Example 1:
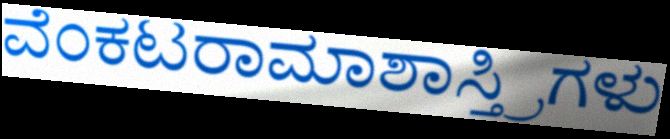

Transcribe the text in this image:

ವೆಂಕಟರಾಮಾಶಾಸ್ತ್ರಿಗಳು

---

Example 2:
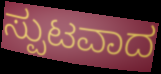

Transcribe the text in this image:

ಸ್ಪುಟವಾದ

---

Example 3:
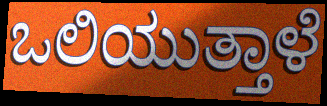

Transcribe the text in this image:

ಒಲಿಯುತ್ತಾಳೆ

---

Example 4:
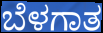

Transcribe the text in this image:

ಬೆಳಗಾತ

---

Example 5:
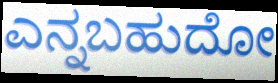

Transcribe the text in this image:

ಎನ್ನಬಹುದೋ